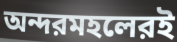
অন্দরমহলেরই